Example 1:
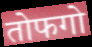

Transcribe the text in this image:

तोफगो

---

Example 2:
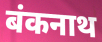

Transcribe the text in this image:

बंकनाथ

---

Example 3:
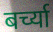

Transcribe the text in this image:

बर्च्या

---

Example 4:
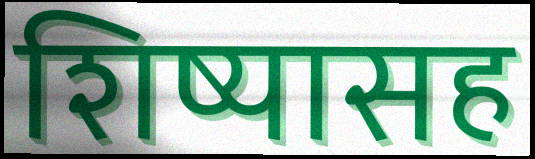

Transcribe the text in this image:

शिष्यासह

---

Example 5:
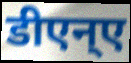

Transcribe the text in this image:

डीएन्ए